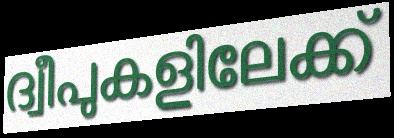
ദ്വീപുകളിലേക്ക്